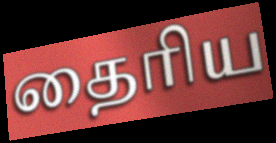
தைரிய